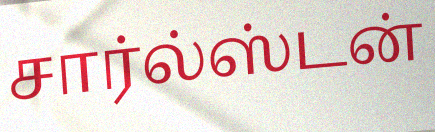
சார்ல்ஸ்டன்